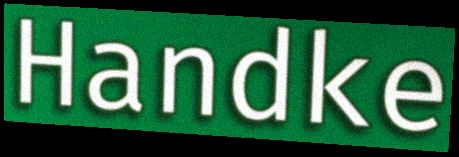
Handke